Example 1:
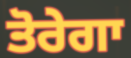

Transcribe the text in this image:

ਤੋਰੇਗਾ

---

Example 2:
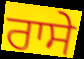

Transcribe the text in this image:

ਰਾਸੇ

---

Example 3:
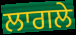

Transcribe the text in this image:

ਲਾਗਲੇ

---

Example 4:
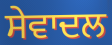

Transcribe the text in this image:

ਸੇਵਾਦਲ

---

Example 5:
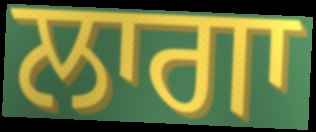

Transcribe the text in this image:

ਲਾਗਾ